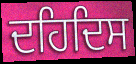
ਦਹਿਦਿਸ